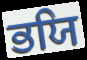
ਭਯਿ